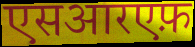
एसआरएफ़